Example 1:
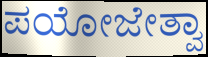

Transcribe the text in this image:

ಪಯೋಜೇತ್ವಾ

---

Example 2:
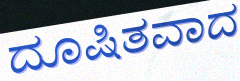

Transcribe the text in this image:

ದೂಷಿತವಾದ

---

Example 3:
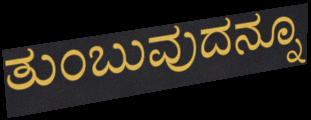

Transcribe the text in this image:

ತುಂಬುವುದನ್ನೂ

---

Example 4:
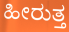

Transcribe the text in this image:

ಹೀರುತ್ತ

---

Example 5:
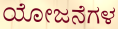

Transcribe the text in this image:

ಯೋಜನೆಗಳ